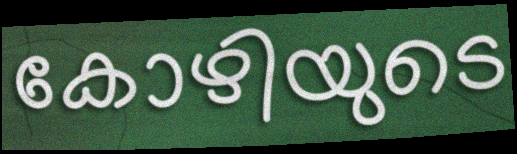
കോഴിയുടെ